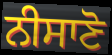
ਨੀਸਾਣੋ